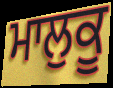
ਮਾਲੁਕੂ